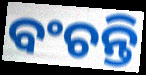
ବଂଚନ୍ତି